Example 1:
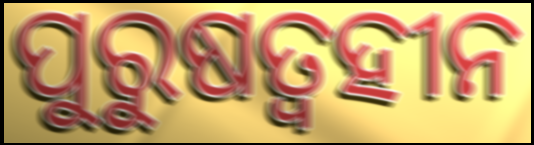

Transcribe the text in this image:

ପୁରୁଷତ୍ୱହୀନ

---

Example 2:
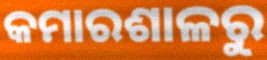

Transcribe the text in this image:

କମାରଶାଳରୁ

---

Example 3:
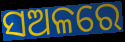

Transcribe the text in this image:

ସଅଳରେ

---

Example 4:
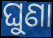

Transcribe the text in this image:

ଘୁଣା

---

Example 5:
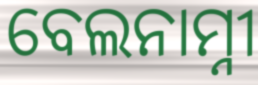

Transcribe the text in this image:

ବେଲନାମ୍ନୀ